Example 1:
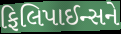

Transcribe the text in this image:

ફિલિપાઈન્સને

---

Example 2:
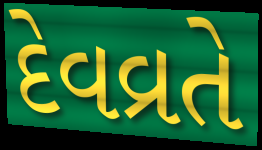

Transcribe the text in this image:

દેવવ્રતે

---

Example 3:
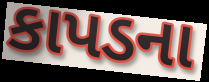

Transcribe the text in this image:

કાપડના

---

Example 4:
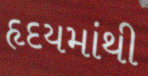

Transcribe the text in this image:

હૃદયમાંથી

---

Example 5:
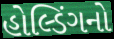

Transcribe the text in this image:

હોલ્ડિંગનો